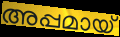
അപ്പമായ്